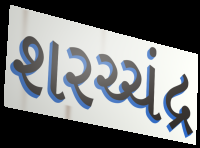
શરચ્ચંદ્ર